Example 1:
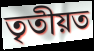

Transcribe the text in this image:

তৃতীয়ত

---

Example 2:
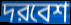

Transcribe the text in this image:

দরবেশ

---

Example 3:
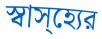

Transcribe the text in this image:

স্বাস্হ্যের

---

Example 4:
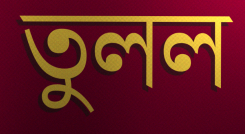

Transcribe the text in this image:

তুলল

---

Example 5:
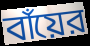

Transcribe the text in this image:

বাঁয়ের